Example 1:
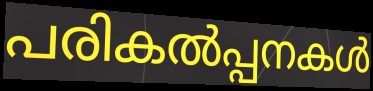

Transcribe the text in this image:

പരികൽപ്പനകൾ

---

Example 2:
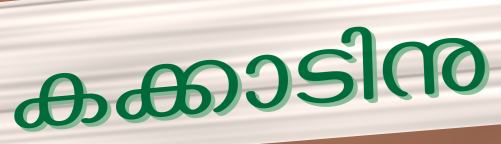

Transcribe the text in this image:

കക്കാടിനു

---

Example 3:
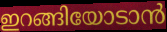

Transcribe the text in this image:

ഇറങ്ങിയോടാൻ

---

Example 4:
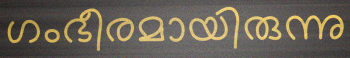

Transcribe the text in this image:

ഗംഭീരമായിരുന്നു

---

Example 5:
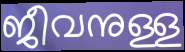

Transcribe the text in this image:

ജീവനുള്ള